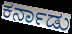
ಕರ್ನಾಡು